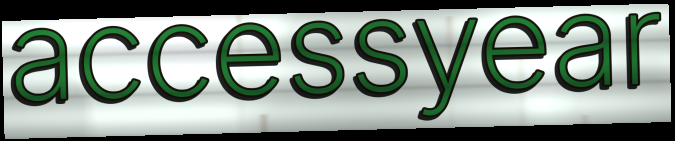
accessyear